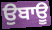
ਉਬਾਊ